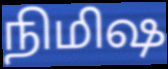
நிமிஷ